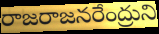
రాజరాజనరేంద్రుని